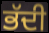
ਭੱਦੀ